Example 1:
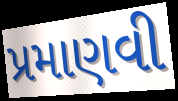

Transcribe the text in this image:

પ્રમાણવી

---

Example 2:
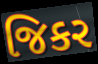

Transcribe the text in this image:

જિકર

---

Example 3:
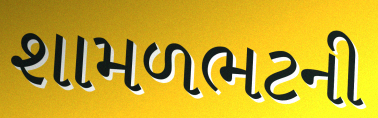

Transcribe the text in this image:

શામળભટની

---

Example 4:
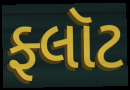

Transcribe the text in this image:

ફ્લૉટ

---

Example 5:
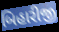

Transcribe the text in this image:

બિહારીજી